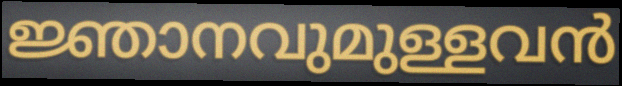
ജ്ഞാനവുമുള്ളവൻ